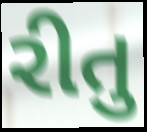
રીતુ